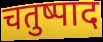
चतुष्पाद